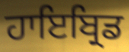
ਹਾਇਬ੍ਰਿਡ